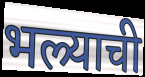
भल्याची